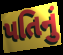
પતિનું